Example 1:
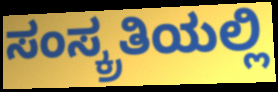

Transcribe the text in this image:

ಸಂಸ್ಕ್ರತಿಯಲ್ಲಿ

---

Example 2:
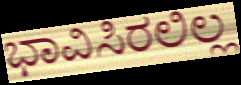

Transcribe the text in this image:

ಭಾವಿಸಿರಲಿಲ್ಲ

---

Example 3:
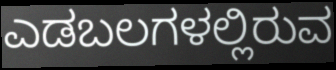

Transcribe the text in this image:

ಎಡಬಲಗಳಲ್ಲಿರುವ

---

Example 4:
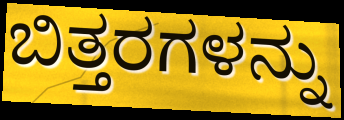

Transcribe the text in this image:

ಬಿತ್ತರಗಳನ್ನು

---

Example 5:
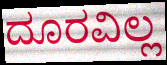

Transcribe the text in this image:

ದೂರವಿಲ್ಲ